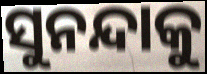
ସୁନନ୍ଦାକୁ